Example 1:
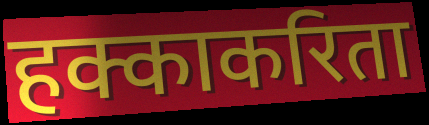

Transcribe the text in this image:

हक्काकरिता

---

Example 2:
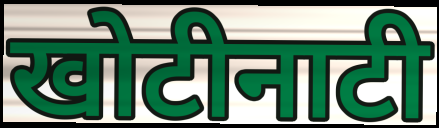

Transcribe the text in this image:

खोटीनाटी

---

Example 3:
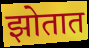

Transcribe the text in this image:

झोतात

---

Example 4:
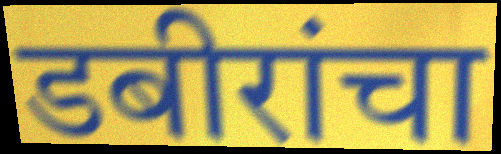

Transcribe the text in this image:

डबीरांचा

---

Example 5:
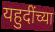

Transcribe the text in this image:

यहुदींच्या